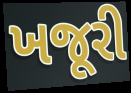
ખજૂરી